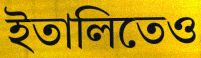
ইতালিতেও